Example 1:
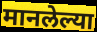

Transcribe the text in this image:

मानलेल्या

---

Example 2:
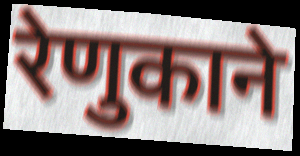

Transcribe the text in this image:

रेणुकाने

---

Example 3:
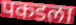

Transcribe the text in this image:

पकडला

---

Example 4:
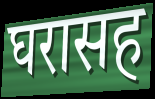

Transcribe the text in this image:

घरासह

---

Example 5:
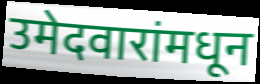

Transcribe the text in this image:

उमेदवारांमधून